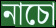
নাচো